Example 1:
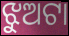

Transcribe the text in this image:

ଝୁଅଟା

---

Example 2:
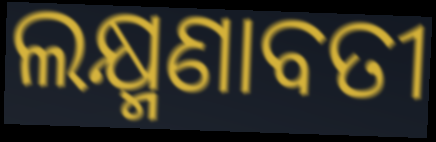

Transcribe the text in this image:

ଲକ୍ଷ୍ମଣାବତୀ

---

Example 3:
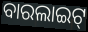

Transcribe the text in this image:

ବାରଲାଇଟ୍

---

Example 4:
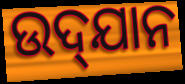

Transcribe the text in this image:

ଉଦ୍‌ଯାନ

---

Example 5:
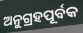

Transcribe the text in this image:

ଅନୁଗ୍ରହପୂର୍ବକ